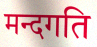
मन्दगति